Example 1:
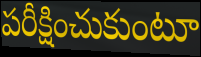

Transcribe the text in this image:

పరీక్షించుకుంటూ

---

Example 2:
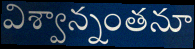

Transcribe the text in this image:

విశ్వాన్నంతనూ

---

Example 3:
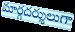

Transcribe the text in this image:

మార్గదర్శులుగా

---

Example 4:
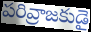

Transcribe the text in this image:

పరివ్రాజకుడై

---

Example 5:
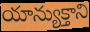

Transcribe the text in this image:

యాన్యుక్తాని